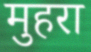
मुहरा